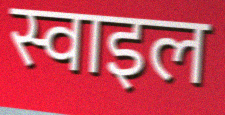
स्वाइल